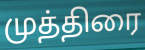
முத்திரை